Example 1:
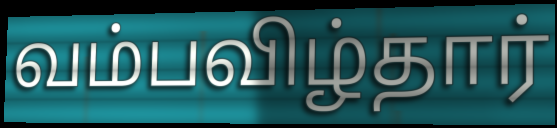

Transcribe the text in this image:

வம்பவிழ்தார்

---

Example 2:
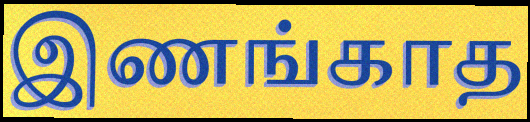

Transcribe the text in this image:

இணங்காத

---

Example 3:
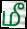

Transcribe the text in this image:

மீ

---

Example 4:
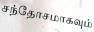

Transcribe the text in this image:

சந்தோசமாகவும்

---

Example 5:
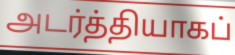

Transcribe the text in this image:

அடர்த்தியாகப்